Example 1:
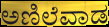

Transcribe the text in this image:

ಅಣಿಲೆವಾಡ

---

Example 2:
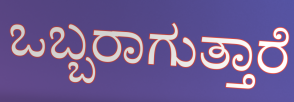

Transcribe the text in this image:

ಒಬ್ಬರಾಗುತ್ತಾರೆ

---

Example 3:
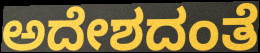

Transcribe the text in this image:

ಅದೇಶದಂತೆ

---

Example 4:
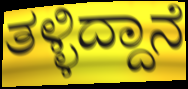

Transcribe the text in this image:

ತಳ್ಳಿದ್ದಾನೆ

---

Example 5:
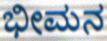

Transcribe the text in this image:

ಭೀಮನ